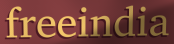
freeindia